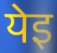
येइ